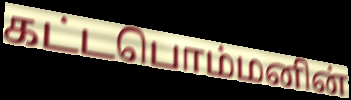
கட்டபொம்மனின்